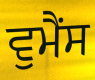
ਵੁਮੈਂਸ